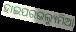
ହାଇପରଭଲ୍ୟୁମିଆ